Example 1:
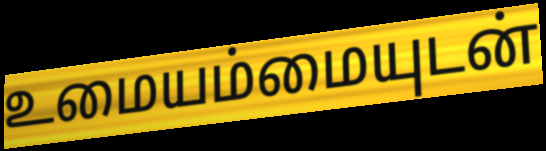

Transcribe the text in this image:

உமையம்மையுடன்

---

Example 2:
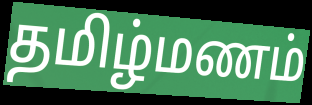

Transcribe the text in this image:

தமிழ்மணம்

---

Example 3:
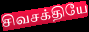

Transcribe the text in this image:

சிவசக்தியே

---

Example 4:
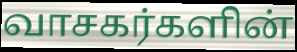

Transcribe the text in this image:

வாசகர்களின்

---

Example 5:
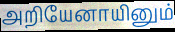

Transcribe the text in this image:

அறியேனாயினும்